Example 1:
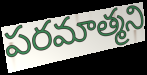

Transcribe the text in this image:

పరమాత్మని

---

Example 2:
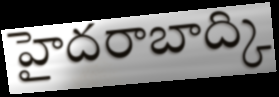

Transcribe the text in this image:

హైదరాబాద్కి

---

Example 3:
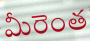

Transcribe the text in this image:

మీరెంత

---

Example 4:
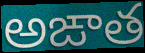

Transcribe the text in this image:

అఙాత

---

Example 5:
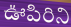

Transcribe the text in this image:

ఊపిరిని